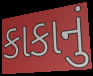
કાકાનું